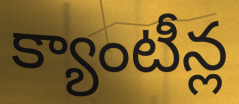
క్యాంటీన్ల